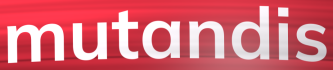
mutandis